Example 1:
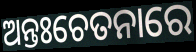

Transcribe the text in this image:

ଅନ୍ତଃଚେତନାରେ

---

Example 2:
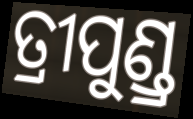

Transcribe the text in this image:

ତ୍ରୀପୁଣ୍ଡ୍ର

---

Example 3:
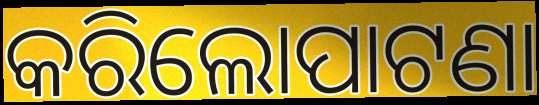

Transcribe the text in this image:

କରିଲୋପାଟଣା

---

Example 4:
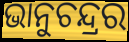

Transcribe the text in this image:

ଭାନୁଚନ୍ଦ୍ରର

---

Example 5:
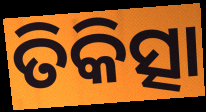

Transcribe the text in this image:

ତିକିତ୍ସା